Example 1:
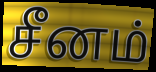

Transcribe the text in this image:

சீனம்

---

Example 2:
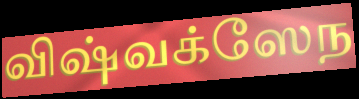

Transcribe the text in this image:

விஷ்வக்ஸேந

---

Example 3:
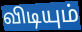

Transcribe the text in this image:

விடியும்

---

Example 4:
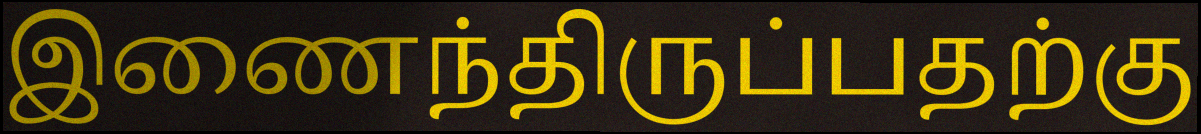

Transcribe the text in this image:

இணைந்திருப்பதற்கு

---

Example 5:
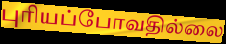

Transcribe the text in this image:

புரியப்போவதில்லை